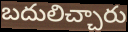
బదులిచ్చారు